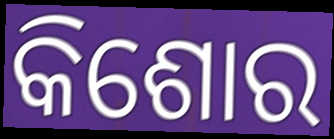
କିଶୋର